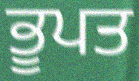
ਭੂਪਤ